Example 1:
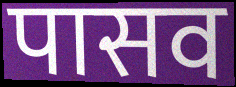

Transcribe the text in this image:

पासव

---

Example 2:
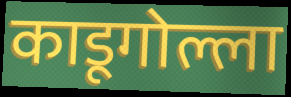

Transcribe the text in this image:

काडूगोल्ला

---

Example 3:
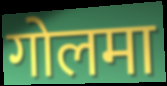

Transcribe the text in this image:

गोलमा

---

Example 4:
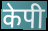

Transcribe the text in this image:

केपी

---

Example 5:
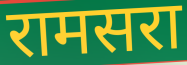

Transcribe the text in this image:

रामसरा